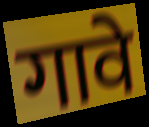
गावे